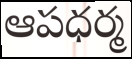
ఆపధర్మ